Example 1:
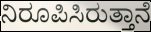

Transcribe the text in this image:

ನಿರೂಪಿಸಿರುತ್ತಾನೆ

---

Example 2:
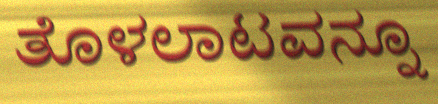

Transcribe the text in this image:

ತೊಳಲಾಟವನ್ನೂ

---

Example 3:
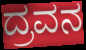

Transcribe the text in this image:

ದ್ರವನ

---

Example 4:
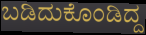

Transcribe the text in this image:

ಬಡಿದುಕೊಂಡಿದ್ದ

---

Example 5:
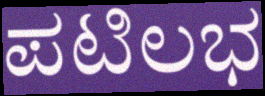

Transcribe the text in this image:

ಪಟಿಲಭ